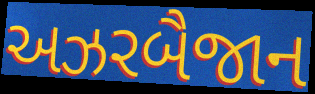
અઝરબૈજાન